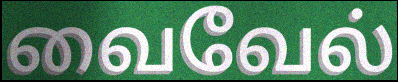
வைவேல்